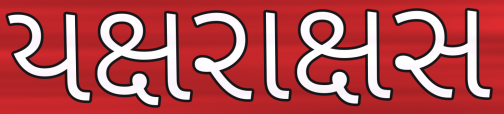
યક્ષરાક્ષસ